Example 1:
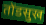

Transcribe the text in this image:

तोंडसुख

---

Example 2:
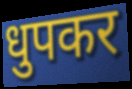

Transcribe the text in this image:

धुपकर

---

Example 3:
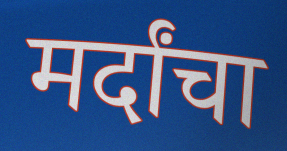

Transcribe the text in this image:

मर्दांचा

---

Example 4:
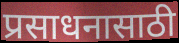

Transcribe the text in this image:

प्रसाधनासाठी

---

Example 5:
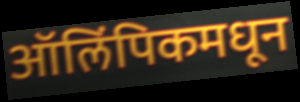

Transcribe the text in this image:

ऑलिंपिकमधून